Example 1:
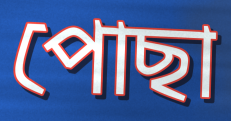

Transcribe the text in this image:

পোছা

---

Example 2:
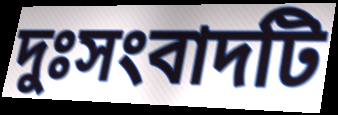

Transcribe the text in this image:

দুঃসংবাদটি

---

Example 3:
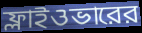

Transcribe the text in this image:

ফ্লাইওভারের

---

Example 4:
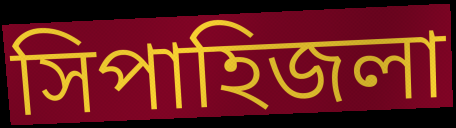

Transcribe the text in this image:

সিপাহিজলা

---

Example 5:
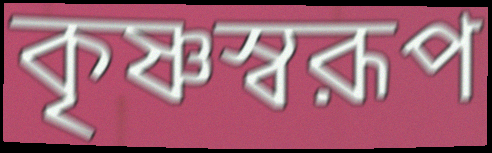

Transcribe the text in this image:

কৃষ্ণস্বরূপ